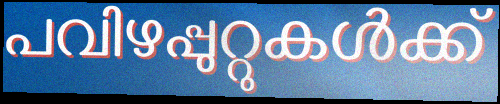
പവിഴപ്പുറ്റുകൾക്ക്